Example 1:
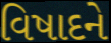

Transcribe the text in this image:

વિષાદને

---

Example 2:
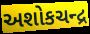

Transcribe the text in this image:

અશોકચન્દ્ર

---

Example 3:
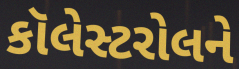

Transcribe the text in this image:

કૉલેસ્ટરોલને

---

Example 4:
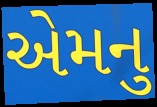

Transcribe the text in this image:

એમનુ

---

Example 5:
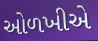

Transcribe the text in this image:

ઓળખીએ